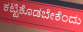
ಕಟ್ಟಿಕೊಡಬೇಕೆಂದು